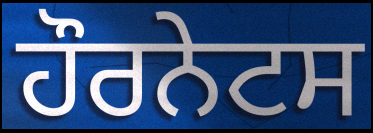
ਹੌਰਨੇਟਸ